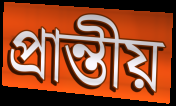
প্রান্তীয়